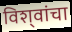
विश्वांचा